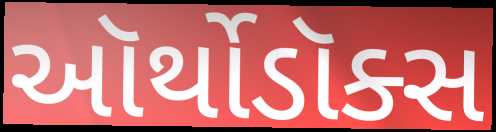
ઑર્થોડૉક્સ